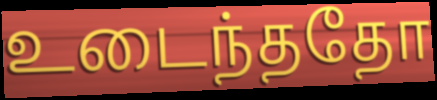
உடைந்ததோ